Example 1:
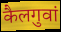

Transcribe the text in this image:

कैलगुवां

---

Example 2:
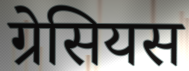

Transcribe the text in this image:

ग्रेसियस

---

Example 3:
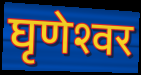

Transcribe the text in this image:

घृणेश्वर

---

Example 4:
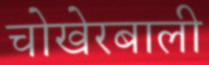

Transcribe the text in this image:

चोखेरबाली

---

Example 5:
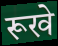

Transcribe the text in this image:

रूखे